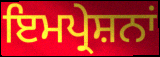
ਇਮਪ੍ਰੇਸ਼ਨਾਂ